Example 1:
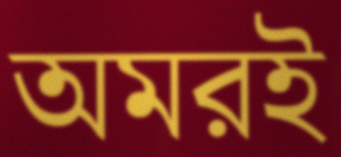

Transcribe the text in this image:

অমরই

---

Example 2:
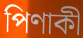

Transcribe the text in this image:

পিণাকী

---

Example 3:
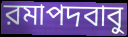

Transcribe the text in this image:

রমাপদবাবু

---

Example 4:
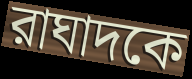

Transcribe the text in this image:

রাঘাদকে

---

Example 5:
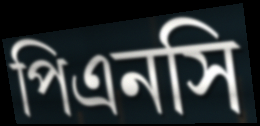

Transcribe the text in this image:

পিএনসি